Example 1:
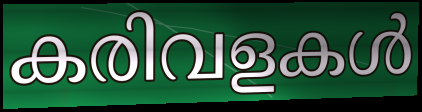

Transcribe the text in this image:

കരിവളകൾ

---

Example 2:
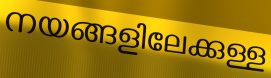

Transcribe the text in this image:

നയങ്ങളിലേക്കുള്ള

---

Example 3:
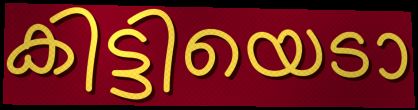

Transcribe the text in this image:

കിട്ടിയെടാ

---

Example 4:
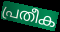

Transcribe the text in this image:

പ്രതീക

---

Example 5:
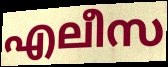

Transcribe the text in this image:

എലീസ